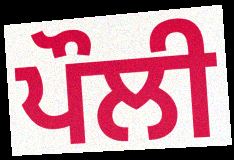
ਪੌਲੀ